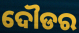
ଦୌଡର